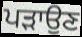
ਪੜਾਉਣ